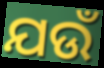
ଯଉଁ